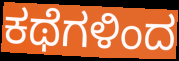
ಕಥೆಗಳಿಂದ